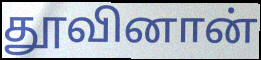
தூவினான்